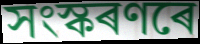
সংস্কৰণৰে